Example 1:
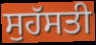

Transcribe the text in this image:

ਸੁਹੱਸਤੀ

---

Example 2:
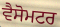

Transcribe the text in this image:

ਵੈਸੋਮਟਰ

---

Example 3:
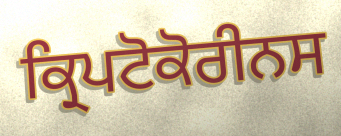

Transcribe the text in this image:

ਕ੍ਰਿਪਟੋਕੋਰੀਨਸ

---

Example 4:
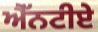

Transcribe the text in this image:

ਐੱਨਟੀਏ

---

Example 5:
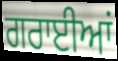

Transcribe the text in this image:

ਗਰਾਈਆਂ